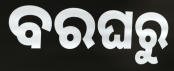
ବରଘରୁ